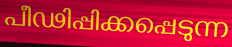
പീഢിപ്പിക്കപ്പെടുന്ന